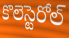
కొలెస్టెరోల్